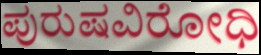
ಪುರುಷವಿರೋಧಿ